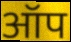
ऑप